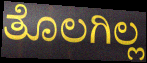
ತೊಲಗಿಲ್ಲ